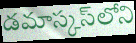
డమాస్కస్‌లోని